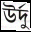
উৰ্দু